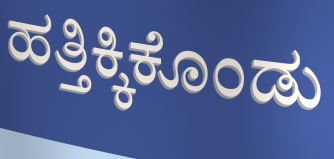
ಹತ್ತಿಕ್ಕಿಕೊಂಡು